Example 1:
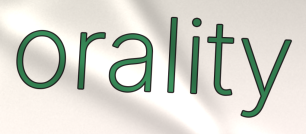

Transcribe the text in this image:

orality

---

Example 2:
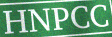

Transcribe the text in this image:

HNPCC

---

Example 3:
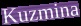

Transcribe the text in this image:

Kuzmina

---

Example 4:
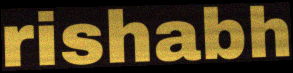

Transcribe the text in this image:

rishabh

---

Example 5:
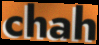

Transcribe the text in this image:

chah